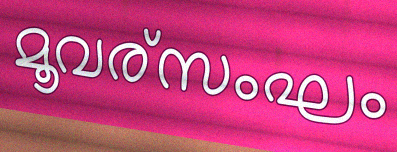
മൂവര്സംഘം